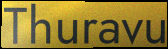
Thuravu